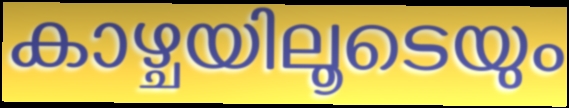
കാഴ്ചയിലൂടെയും